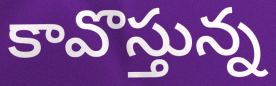
కావొస్తున్న